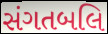
સંગતબલિ